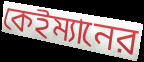
কেইম্যানের